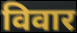
विवार